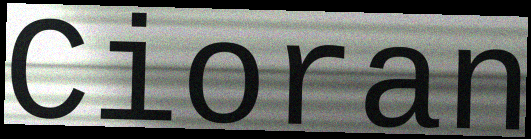
Cioran